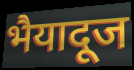
भैयादूज